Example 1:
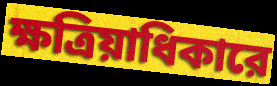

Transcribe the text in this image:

ক্ষত্রিয়াধিকারে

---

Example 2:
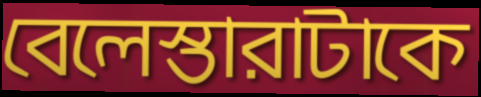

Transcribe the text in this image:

বেলেস্তারাটাকে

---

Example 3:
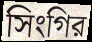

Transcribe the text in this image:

সিংগির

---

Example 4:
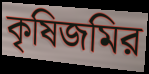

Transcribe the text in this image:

কৃষিজমির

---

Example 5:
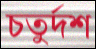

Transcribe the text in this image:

চতুর্দশ